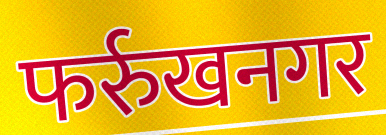
फर्रुखनगर